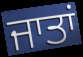
ਜਾਤਾਂ